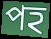
পহ